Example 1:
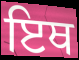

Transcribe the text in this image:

ਇਥ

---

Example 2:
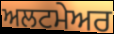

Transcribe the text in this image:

ਅਲਟਮੇਅਰ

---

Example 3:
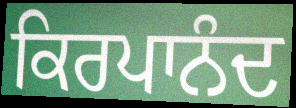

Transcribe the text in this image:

ਕਿਰਪਾਨੰਦ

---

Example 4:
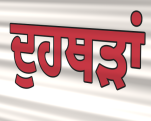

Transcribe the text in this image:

ਦੁਹਥੜਾਂ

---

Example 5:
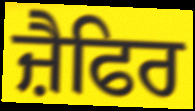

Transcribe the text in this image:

ਜ਼ੈਫਿਰ